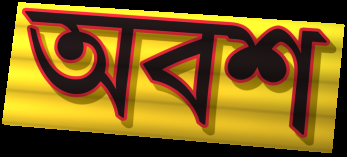
অবশ